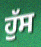
ਹੁੱਸ